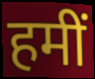
हमीं